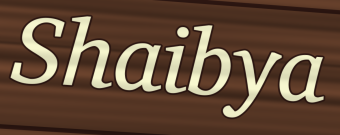
Shaibya